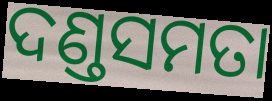
ଦଣ୍ଡସମତା